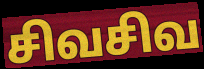
சிவசிவ